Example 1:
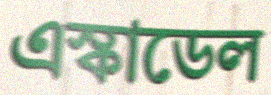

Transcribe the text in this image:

এস্কাডেল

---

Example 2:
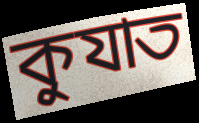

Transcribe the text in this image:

কুযাত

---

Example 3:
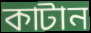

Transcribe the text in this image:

কাটান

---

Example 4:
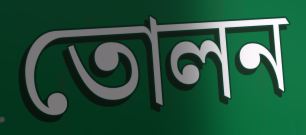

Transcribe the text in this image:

তোলন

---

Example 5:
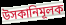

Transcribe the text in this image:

উসকানিমূলক